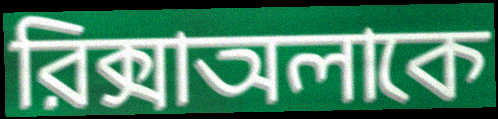
রিক্সাঅলাকে